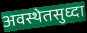
अवस्थेतसुध्दा